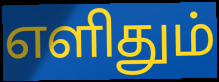
எளிதும்